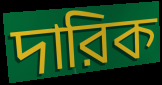
দারিক